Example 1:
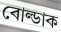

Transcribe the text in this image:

বোল্ডাক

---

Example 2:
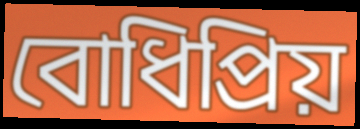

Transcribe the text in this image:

বোধিপ্রিয়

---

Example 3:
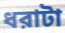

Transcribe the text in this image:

ধরাটা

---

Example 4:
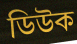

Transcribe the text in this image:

ডিউক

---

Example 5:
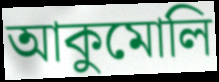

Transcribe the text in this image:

আকুমোলি